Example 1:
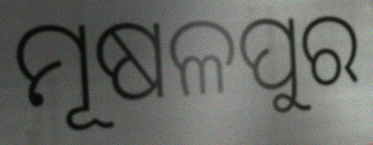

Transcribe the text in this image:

ମୂଷଳପୁର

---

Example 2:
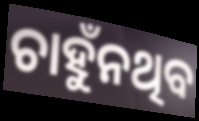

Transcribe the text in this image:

ଚାହୁଁନଥିବ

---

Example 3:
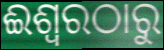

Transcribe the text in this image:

ଈଶ୍ୱରଠାରୁ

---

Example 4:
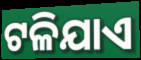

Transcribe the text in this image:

ଟଳିଯାଏ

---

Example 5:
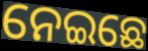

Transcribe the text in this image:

ନେଇଛେ